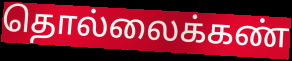
தொல்லைக்கண்